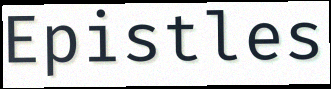
Epistles